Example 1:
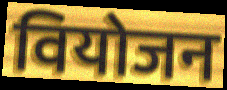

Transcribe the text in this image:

वियोजन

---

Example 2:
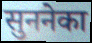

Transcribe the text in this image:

सुननेका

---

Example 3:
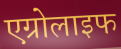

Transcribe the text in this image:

एग्रोलाइफ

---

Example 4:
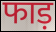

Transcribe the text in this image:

फाड़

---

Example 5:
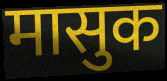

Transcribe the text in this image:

मासुक